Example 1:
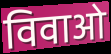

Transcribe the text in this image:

विवाओ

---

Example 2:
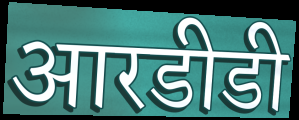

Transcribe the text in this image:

आरडीडी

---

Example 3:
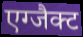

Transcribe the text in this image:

एग्जैक्ट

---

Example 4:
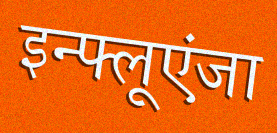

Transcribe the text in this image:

इन्फ्लूएंजा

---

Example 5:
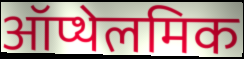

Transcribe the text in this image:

ऑप्थेलमिक